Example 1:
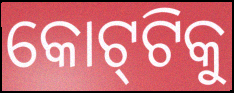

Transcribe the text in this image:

କୋଟ୍‌ଟିକୁ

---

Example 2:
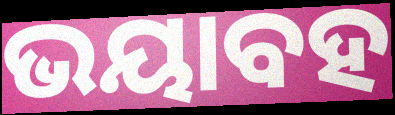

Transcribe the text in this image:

ଭୟାବହ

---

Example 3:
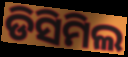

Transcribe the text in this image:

ଡିସିମିଲ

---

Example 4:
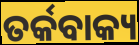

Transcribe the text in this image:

ତର୍କବାକ୍ୟ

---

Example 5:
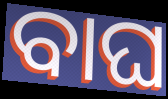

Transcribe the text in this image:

ବାଘ